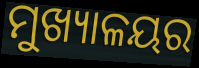
ମୁଖ୍ୟାଳୟର